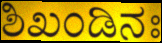
ಶಿಖಂಡಿನಃ